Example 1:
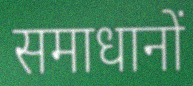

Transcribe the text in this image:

समाधानों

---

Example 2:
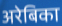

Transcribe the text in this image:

अरेबिका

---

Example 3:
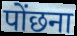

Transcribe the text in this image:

पोंछना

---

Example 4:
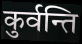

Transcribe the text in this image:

कुर्वन्ति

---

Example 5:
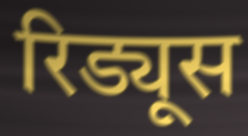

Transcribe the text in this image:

रिड्यूस